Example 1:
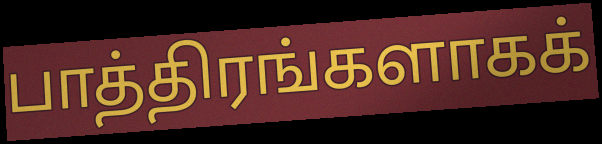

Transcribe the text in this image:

பாத்திரங்களாகக்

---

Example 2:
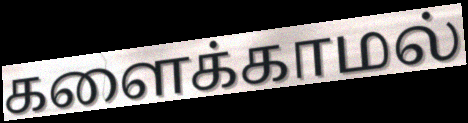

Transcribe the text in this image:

களைக்காமல்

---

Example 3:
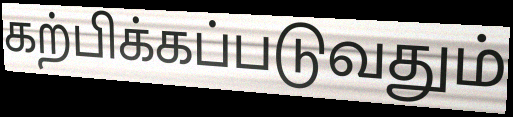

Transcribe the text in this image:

கற்பிக்கப்படுவதும்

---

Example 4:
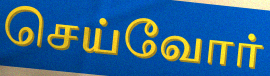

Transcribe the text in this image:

செய்வோர்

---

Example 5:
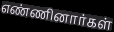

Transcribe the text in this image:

எண்ணினார்கள்